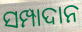
ସମ୍ପାଦାନ